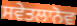
ਸਵੇਤਲਾਨੋਵ